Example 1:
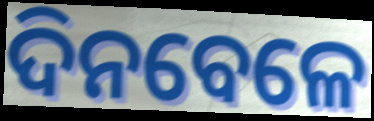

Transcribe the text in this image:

ଦିନବେଳେ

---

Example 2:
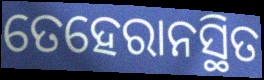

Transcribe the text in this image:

ତେହେରାନସ୍ଥିତ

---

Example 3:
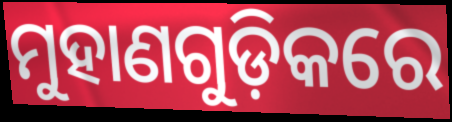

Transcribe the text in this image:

ମୁହାଣଗୁଡ଼ିକରେ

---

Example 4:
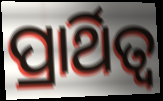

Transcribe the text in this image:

ପ୍ରାର୍ଥିତ୍ୱ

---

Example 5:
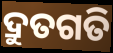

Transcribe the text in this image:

ଦ୍ରୁତଗତି